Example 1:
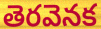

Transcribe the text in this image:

తెరవెనక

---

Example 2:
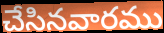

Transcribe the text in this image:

చేసినవారము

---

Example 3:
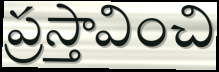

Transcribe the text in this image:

ప్రస్తావించి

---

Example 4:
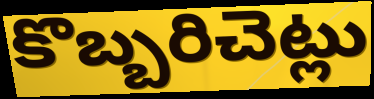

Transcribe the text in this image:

కొబ్బరిచెట్లు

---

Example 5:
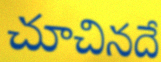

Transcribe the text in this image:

చూచినదే